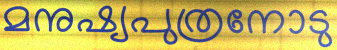
മനുഷ്യപുത്രനോടു